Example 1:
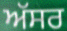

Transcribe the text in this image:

ਅੱਸਰ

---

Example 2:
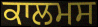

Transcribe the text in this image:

ਕਾਲਮਸ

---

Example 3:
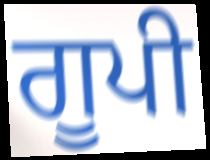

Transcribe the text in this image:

ਗੂਪੀ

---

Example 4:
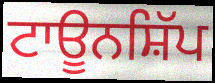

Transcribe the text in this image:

ਟਾਊਨਸ਼ਿੱਪ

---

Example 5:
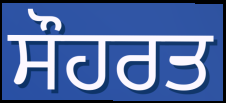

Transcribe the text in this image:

ਸੌਹਰਤ